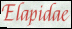
Elapidae